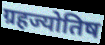
ग्रहज्योतिष